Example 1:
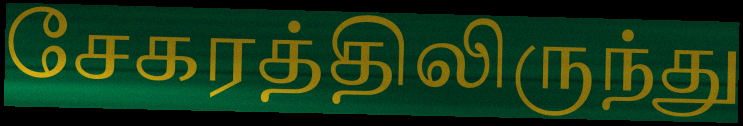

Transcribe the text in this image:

சேகரத்திலிருந்து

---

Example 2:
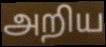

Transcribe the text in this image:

அறிய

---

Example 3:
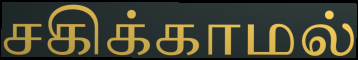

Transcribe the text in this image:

சகிக்காமல்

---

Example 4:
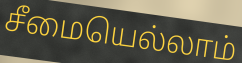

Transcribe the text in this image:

சீமையெல்லாம்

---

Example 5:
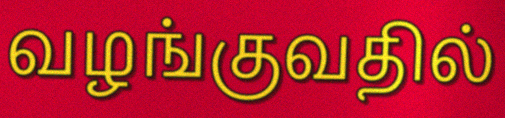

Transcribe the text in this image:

வழங்குவதில்